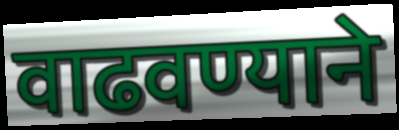
वाढवण्याने